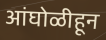
आंघोळीहून